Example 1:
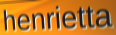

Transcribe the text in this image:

henrietta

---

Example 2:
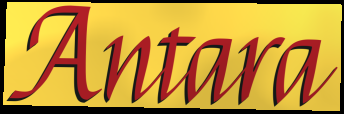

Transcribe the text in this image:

Antara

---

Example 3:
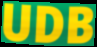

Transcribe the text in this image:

UDB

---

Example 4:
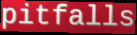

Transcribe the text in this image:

pitfalls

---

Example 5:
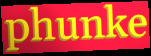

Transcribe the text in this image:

phunke